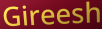
Gireesh